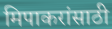
मिपाकरांसाठी